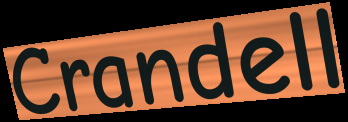
Crandell